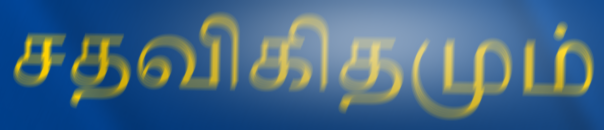
சதவிகிதமும்